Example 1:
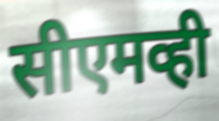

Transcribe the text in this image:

सीएमव्ही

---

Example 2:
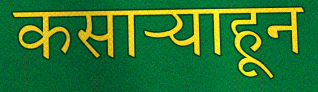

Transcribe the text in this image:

कसाऱ्याहून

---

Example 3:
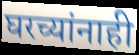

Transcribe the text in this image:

घरच्यांनाही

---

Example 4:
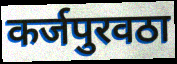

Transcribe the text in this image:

कर्जपुरवठा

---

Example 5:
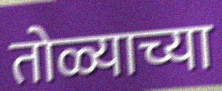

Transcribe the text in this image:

तोळ्याच्या